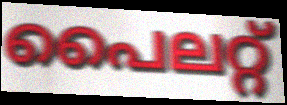
പൈലറ്റ്